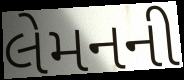
લેમનની